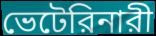
ভেটেরিনারী